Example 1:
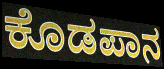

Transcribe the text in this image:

ಕೊಡಪಾನ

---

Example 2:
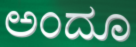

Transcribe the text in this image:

ಅಂದೂ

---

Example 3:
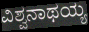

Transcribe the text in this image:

ವಿಶ್ವನಾಥಯ್ಯ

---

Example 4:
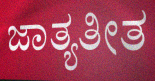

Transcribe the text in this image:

ಜಾತ್ಯತೀತ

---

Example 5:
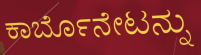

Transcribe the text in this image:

ಕಾರ್ಬೊನೇಟನ್ನು